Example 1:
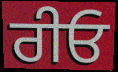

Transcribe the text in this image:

ਰੀਓ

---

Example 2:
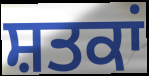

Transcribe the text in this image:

ਸ਼ਤਕਾਂ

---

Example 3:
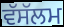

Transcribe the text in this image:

ਵੱਸੱਲਮ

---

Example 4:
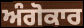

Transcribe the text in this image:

ਅੰਗੋਕਾਰ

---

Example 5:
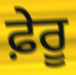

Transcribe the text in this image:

ਫ਼ੇਰੂ